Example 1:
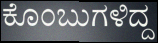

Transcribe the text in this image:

ಕೊಂಬುಗಳಿದ್ದ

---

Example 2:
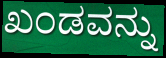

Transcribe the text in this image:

ಖಂಡವನ್ನು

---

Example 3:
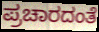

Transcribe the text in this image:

ಪ್ರಚಾರದಂತೆ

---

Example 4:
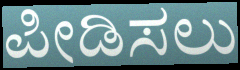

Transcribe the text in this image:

ಪೀಡಿಸಲು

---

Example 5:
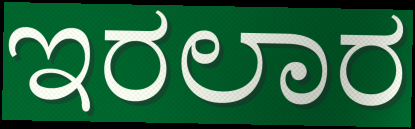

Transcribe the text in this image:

ಇರಲಾರ